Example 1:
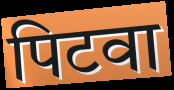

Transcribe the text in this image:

पिटवा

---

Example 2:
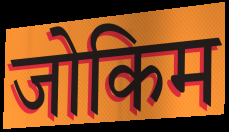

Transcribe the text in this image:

जोकिम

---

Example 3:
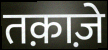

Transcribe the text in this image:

तक़ाज़े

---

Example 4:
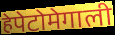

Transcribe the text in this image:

हेपेटोमेगाली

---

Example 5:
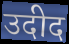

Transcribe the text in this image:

उदीद